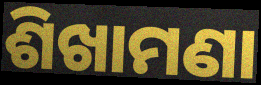
ଶିଖାମଣା